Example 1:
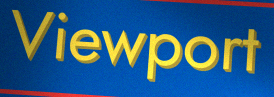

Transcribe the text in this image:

Viewport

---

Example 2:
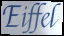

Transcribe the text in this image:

Eiffel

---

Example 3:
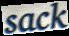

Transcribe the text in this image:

sack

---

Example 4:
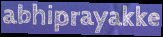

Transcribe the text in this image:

abhiprayakke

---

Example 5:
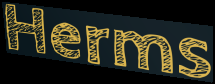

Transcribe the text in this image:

Herms